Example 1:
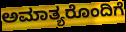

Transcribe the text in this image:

ಅಮಾತ್ಯರೊಂದಿಗೆ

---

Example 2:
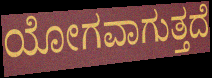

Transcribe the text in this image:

ಯೋಗವಾಗುತ್ತದೆ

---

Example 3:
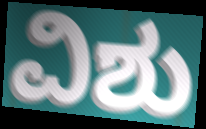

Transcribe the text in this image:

ವಿಶು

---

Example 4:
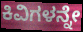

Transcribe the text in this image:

ಕಿವಿಗಳನ್ನೇ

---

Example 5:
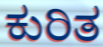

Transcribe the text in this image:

ಕುರಿತ